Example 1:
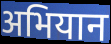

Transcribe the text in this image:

अभियान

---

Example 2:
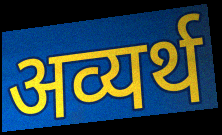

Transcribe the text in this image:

अव्यर्थ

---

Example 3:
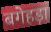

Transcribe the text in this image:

बगेहड़ा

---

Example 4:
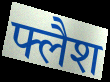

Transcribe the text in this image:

फ्लैश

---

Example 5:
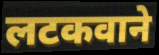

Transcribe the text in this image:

लटकवाने